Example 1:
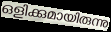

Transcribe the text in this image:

ഒളിക്കുമായിരുന്നു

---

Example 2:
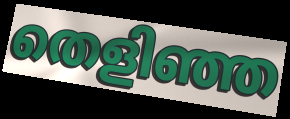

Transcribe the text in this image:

തെളിഞ്ഞ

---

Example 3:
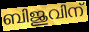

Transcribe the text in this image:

ബിജുവിന്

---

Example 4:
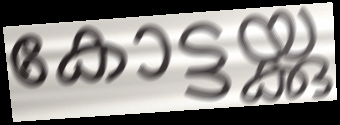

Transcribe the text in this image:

കോട്ടയ്ക്കു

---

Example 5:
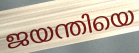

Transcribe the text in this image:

ജയന്തിയെ